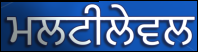
ਮਲਟੀਲੇਵਲ